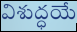
విశుద్ధయే